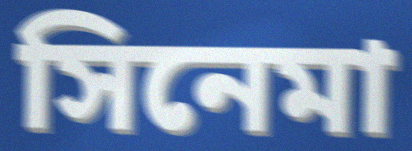
সিনেমা